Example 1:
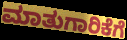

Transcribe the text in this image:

ಮಾತುಗಾರಿಕೆಗೆ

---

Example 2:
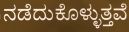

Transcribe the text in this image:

ನಡೆದುಕೊಳ್ಳುತ್ತವೆ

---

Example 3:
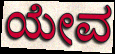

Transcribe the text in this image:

ಯೇವ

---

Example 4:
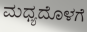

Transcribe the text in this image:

ಮಧ್ಯದೊಳಗೆ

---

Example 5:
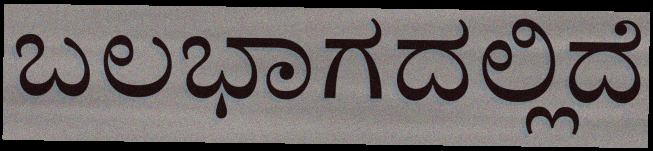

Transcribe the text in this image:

ಬಲಭಾಗದಲ್ಲಿದೆ